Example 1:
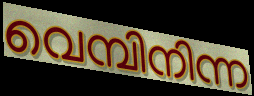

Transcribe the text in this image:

വെമ്പിനിന്ന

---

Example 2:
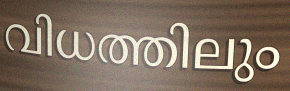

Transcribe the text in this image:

വിധത്തിലും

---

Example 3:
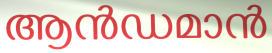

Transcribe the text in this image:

ആൻഡമാൻ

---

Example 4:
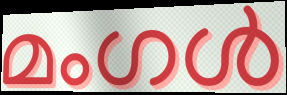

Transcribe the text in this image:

മംഗൾ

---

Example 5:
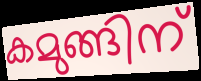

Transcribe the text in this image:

കമുങ്ങിന്